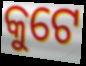
କୁଟେ